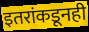
इतरांकडूनही